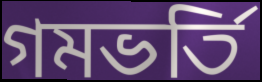
গমভর্তি